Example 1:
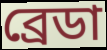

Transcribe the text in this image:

ব্রেডা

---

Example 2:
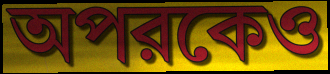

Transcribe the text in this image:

অপরকেও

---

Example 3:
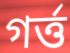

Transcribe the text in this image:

গর্ত্ত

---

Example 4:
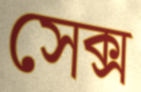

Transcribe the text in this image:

সেক্স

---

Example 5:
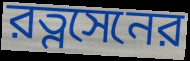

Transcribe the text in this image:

রত্নসেনের